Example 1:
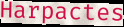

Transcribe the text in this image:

Harpactes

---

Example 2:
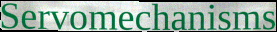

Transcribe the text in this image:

Servomechanisms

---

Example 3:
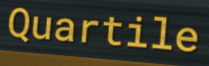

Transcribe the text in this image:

Quartile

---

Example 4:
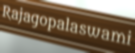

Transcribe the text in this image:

Rajagopalaswami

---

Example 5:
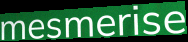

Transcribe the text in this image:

mesmerise